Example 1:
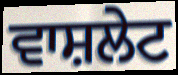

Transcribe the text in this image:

ਵਾਸ਼ਲੇਟ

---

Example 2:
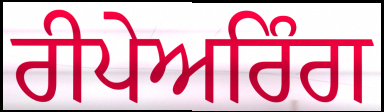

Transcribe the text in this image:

ਰੀਪੇਅਰਿੰਗ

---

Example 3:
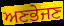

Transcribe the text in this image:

ਅਣਭੇਜਣ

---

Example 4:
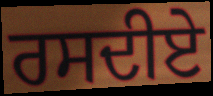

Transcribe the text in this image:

ਰਸਦੀਏ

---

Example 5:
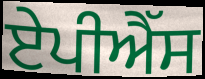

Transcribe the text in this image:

ਏਪੀਐੱਸ